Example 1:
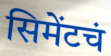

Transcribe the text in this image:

सिमेंटचं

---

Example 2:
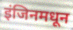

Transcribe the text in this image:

इंजिनमधून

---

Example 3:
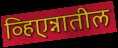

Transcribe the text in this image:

व्हिएन्नातील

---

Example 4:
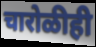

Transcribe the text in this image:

चारोळीही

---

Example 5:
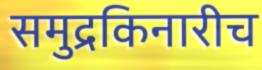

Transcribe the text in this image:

समुद्रकिनारीच